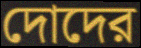
দোদের